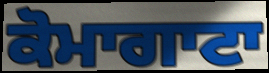
ਕੋਮਾਗਾਟਾ